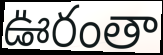
ఊరంతా